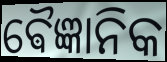
ଵୈଜ୍ଞାନିକ